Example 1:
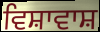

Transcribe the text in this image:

ਵਿਸ਼ਾਵਾਸ਼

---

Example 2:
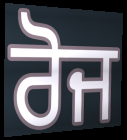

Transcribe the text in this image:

ਰੋਜ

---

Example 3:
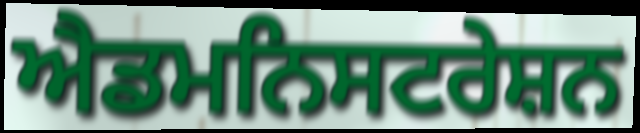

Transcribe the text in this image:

ਐਡਮਨਿਸਟਰੇਸ਼ਨ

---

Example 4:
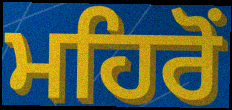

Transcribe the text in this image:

ਮਹਿਰੋਂ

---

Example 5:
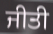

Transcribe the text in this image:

ਜੀਤੀ